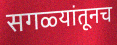
सगळ्यांतूनच